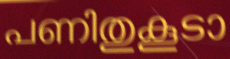
പണിതുകൂടാ